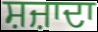
ਸ਼ਜ਼ਾਦਾ